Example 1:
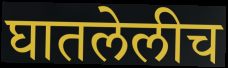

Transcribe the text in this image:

घातलेलीच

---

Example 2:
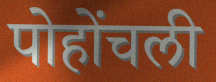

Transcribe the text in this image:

पोहोंचली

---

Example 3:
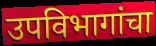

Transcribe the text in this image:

उपविभागांचा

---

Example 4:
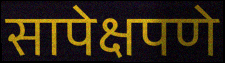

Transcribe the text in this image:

सापेक्षपणे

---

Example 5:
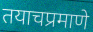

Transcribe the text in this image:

तयाचप्रमाणे